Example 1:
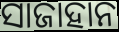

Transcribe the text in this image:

ସାଜାହାନ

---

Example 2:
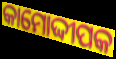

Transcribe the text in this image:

କାମୋଦ୍ଦୀପକ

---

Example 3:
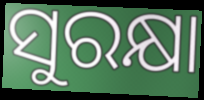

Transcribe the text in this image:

ସୁରକ୍ଷା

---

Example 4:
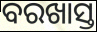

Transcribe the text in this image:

ବରଖାସ୍ତ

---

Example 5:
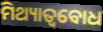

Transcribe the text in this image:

ମିଥ୍ୟାତ୍ୱବୋଧ